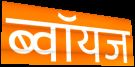
ब्वॉयज